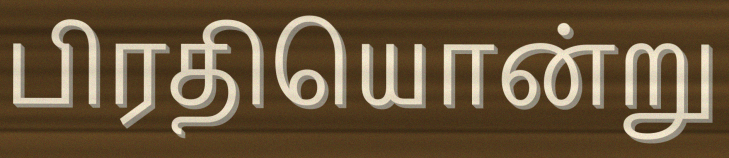
பிரதியொன்று